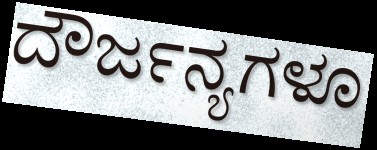
ದೌರ್ಜನ್ಯಗಳೂ